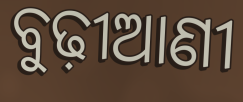
ବୁଢ଼ୀଆଣୀ